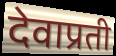
देवाप्रती